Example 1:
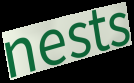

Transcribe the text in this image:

nests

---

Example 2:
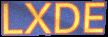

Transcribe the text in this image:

LXDE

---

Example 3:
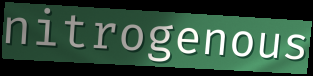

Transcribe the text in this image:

nitrogenous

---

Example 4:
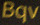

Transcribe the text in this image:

Bqv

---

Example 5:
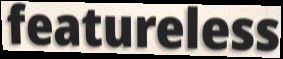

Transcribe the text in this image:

featureless